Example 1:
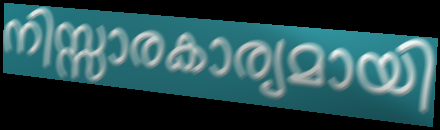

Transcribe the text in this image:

നിസ്സാരകാര്യമായി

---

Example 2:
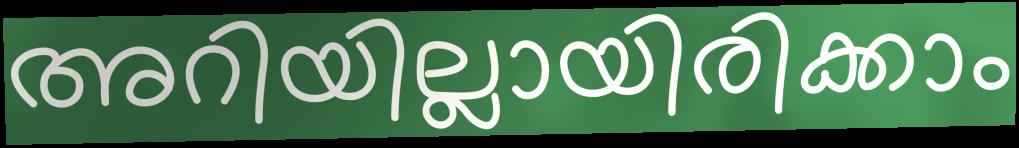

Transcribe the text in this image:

അറിയില്ലായിരിക്കാം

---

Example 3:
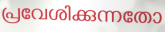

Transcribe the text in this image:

പ്രവേശിക്കുന്നതോ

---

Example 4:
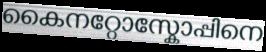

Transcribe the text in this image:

കൈനറ്റോസ്കോപ്പിനെ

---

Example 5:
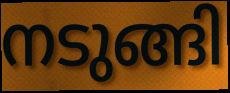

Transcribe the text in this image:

നടുങ്ങി